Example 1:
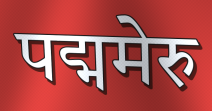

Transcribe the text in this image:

पद्ममेरु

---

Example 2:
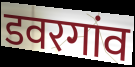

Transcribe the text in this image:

डवरगांव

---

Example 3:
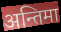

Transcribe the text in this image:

अन्तिमा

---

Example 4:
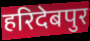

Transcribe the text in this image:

हरिदेबपुर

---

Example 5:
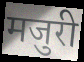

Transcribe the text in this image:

मजुरी